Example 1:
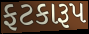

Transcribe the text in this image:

ફટકારૂપ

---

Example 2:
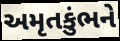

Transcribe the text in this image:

અમૃતકુંભને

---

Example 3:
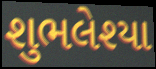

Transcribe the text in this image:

શુભલેશ્યા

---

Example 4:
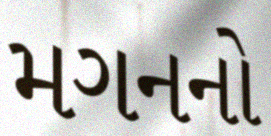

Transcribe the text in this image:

મગનનો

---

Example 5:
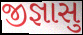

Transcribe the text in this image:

જીજ્ઞાસુ